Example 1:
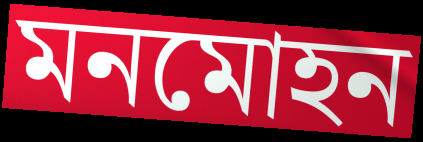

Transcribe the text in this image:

মনমোহন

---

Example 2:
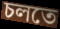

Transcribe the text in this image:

চলতে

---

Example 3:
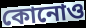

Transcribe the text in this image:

কোনোও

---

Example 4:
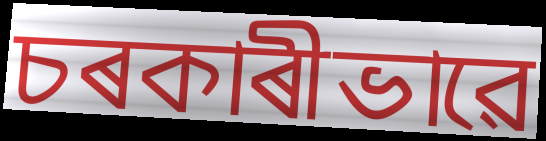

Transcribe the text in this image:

চৰকাৰীভাৱে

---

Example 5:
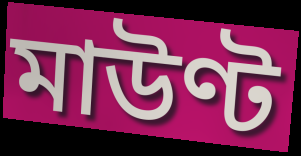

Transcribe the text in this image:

মাউণ্ট